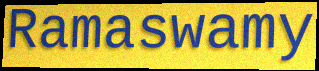
Ramaswamy